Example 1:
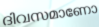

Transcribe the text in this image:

ദിവസമാണോ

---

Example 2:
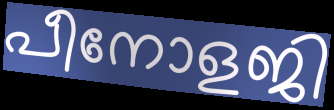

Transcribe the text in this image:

പീനോളജി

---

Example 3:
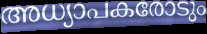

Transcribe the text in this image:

അധ്യാപകരോടും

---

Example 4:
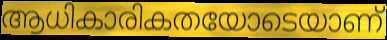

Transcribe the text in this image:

ആധികാരികതയോടെയാണ്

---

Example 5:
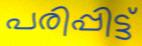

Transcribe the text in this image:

പരിപ്പിട്ട്